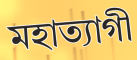
মহাত্যাগী